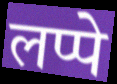
लप्पे